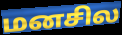
மனசில